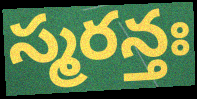
స్మరన్తః